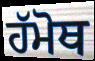
ਹੱਮੋਥ